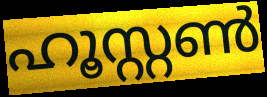
ഹൂസ്റ്റൺ